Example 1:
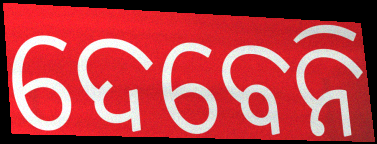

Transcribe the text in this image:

ଦେବେନି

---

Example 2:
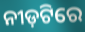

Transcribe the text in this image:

ନୀଡ଼ଟିରେ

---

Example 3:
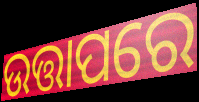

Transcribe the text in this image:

ଉତ୍ତାପରେ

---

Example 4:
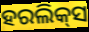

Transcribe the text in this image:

ହରଲିକ୍‍ସ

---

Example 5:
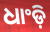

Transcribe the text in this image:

ଧାଂଡ଼ି